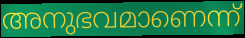
അനുഭവമാണെന്ന്